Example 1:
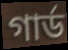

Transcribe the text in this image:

গাৰ্ড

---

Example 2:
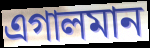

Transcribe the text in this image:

এগালমান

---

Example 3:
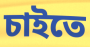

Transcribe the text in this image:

চাইতে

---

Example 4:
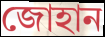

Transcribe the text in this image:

জোহান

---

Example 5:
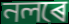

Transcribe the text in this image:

নলৰে